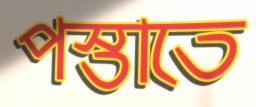
পস্তাতে